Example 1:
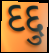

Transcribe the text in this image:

દદ્દુ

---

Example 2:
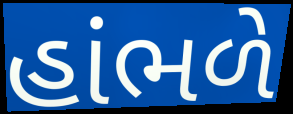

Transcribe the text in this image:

હાંભળે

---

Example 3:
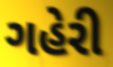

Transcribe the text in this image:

ગહેરી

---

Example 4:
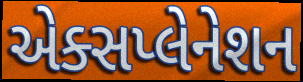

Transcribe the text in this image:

એક્સપ્લેનેશન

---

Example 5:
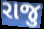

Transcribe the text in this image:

રાજુ